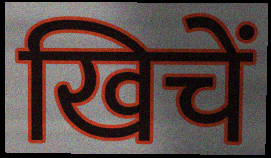
खिचें